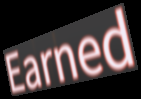
Earned